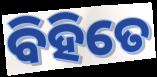
ବିହିତେ